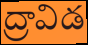
ద్రావిడ